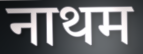
नाथम